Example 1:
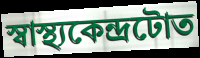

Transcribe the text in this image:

স্বাস্থ্যকেন্দ্ৰটোত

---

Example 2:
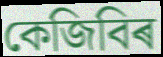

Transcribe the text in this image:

কেজিবিৰ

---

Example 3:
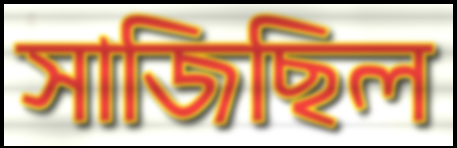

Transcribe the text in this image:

সাজিছিল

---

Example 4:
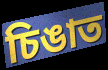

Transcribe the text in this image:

চিঙাত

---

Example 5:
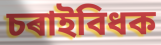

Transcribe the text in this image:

চৰাইবিধক